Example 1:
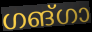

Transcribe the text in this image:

ഗങ്ഗാ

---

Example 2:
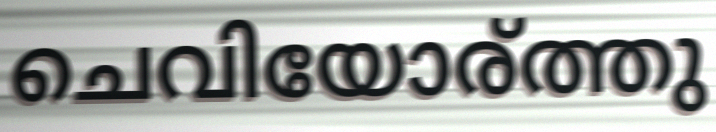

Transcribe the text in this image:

ചെവിയോര്ത്തു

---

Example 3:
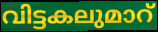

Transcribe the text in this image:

വിട്ടകലുമാറ്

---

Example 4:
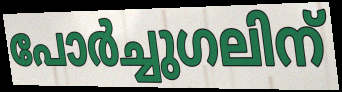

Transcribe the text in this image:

പോർച്ചുഗലിന്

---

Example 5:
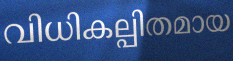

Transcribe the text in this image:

വിധികല്പിതമായ